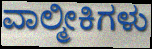
ವಾಲ್ಮೀಕಿಗಳು